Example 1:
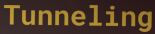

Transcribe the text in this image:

Tunneling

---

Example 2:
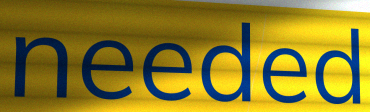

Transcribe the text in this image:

needed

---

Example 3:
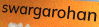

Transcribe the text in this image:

swargarohan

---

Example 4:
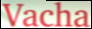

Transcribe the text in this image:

Vacha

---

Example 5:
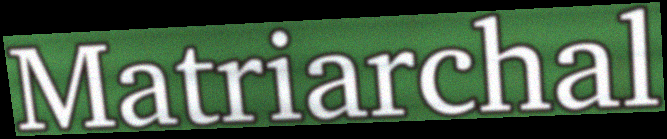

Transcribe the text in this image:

Matriarchal